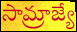
సామ్రాజ్యే